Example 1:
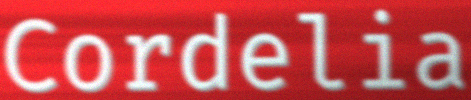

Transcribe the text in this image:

Cordelia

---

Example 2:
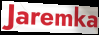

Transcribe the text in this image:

Jaremka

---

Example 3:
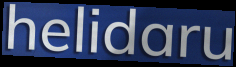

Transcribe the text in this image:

helidaru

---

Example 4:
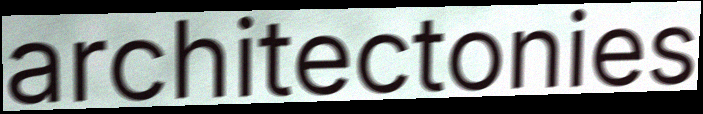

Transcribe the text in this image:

architectonies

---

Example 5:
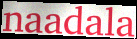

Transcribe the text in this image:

naadala